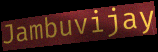
Jambuvijay